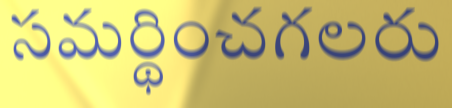
సమర్థించగలరు